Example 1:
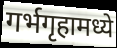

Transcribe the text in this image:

गर्भगृहामध्ये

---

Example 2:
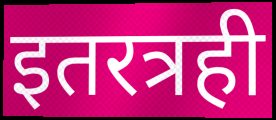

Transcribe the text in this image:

इतरत्रही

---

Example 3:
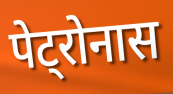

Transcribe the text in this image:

पेट्रोनास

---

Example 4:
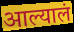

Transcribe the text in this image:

आल्यालं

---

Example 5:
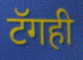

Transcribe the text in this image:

टॅगही